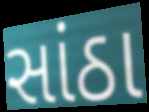
સાંઠા